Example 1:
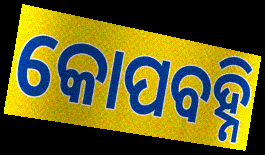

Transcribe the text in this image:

କୋପବହ୍ନି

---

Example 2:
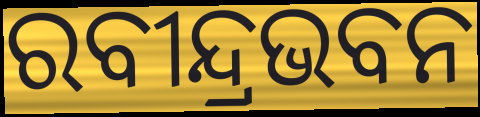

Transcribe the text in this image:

ରବୀନ୍ଦ୍ରଭବନ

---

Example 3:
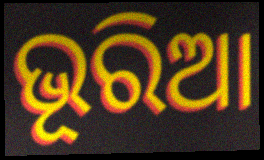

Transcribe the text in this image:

ଭୂରିଆ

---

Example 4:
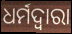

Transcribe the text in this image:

ଧର୍ମଦ୍ୱାରା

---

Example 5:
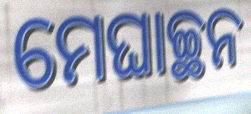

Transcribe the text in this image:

ମେଘାଚ୍ଛନ